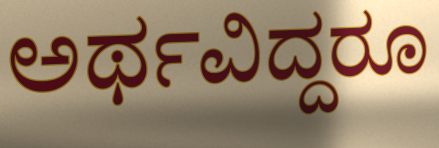
ಅರ್ಥವಿದ್ದರೂ